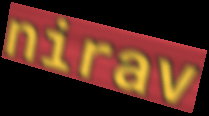
nirav